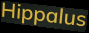
Hippalus